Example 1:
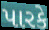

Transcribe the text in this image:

પારકે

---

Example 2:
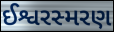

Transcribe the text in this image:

ઈશ્વરસ્મરણ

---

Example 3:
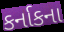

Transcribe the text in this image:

કર્નાકના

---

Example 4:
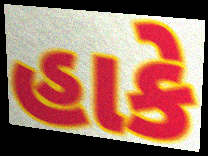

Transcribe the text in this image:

હાકે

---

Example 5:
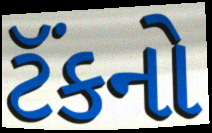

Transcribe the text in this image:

ટૅંકનો